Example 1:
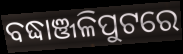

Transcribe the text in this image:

ବଦ୍ଧାଞ୍ଜଳିପୁଟରେ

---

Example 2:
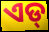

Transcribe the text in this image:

ଏଡ୍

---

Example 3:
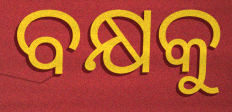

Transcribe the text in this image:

ବକ୍ଷକୁ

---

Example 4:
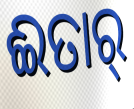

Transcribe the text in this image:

ଈତାର୍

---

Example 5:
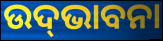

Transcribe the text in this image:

ଉଦ୍‍ଭାବନା